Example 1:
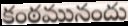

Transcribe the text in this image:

కంఠమునందు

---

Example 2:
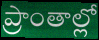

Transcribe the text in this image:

ప్రాంతాల్లో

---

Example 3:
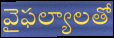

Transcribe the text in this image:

వైఫల్యాలతో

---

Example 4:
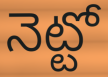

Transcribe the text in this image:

నెట్టో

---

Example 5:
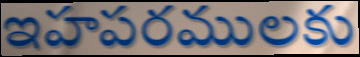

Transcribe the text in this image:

ఇహపరములకు